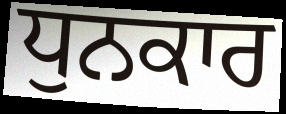
ਧੁਨਕਾਰ